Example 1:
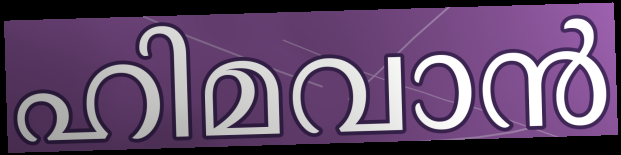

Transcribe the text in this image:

ഹിമവാൻ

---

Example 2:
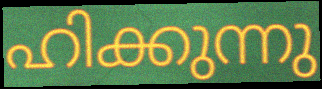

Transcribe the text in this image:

ഹിക്കുന്നു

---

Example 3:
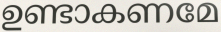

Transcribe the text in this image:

ഉണ്ടാകണമേ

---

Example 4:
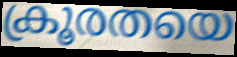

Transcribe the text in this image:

ക്രൂരതയെ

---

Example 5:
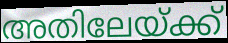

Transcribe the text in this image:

അതിലേയ്ക്ക്